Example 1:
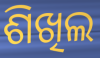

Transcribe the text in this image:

ଶିଖିଲ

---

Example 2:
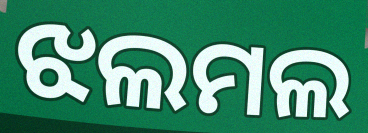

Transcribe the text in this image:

ଝଲମଲ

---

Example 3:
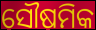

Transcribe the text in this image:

ସୌଷମିକ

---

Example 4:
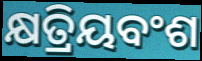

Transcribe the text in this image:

କ୍ଷତ୍ରିୟବଂଶ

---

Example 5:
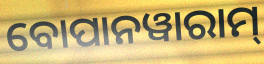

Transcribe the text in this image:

ବୋପାନୱାରାମ୍